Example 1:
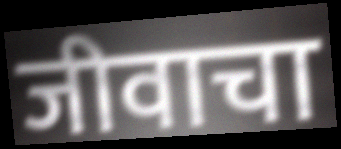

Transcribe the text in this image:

जीवाचा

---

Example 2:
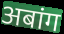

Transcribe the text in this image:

अबांग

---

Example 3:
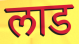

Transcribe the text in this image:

लाड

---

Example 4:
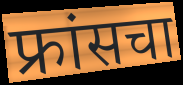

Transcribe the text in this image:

फ्रांसचा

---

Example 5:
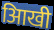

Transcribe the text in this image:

आिखी